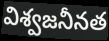
విశ్వజనీనత